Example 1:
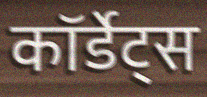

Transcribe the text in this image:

कॉर्डेट्स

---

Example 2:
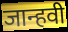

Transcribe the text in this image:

जान्‍हवी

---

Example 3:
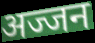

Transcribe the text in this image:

अज्जन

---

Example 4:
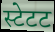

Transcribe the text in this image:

स्टेटट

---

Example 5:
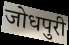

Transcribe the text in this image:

जोधपुरी